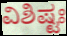
ವಿಶಿಷ್ಟಃ